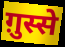
ग़ुस्से